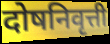
दोषनिवृत्ती